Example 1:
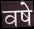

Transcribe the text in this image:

वषे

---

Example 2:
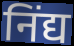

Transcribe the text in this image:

निंद्य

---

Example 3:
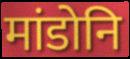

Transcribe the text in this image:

मांडोनि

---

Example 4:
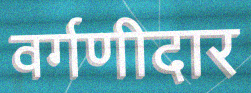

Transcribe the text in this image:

वर्गणीदार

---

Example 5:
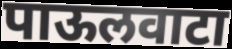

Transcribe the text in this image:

पाऊलवाटा